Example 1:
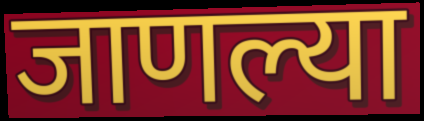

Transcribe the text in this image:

जाणल्या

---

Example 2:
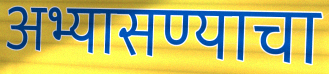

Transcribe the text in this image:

अभ्यासण्याचा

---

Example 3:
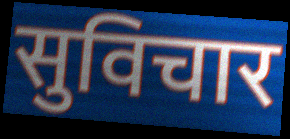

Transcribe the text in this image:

सुविचार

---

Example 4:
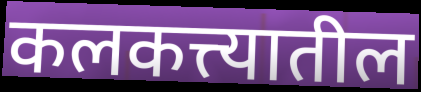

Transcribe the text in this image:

कलकत्त्यातील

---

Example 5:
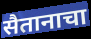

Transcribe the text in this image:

सैतानाचा